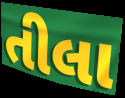
તીલા